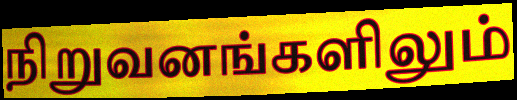
நிறுவனங்களிலும்